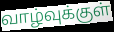
வாழ்வுக்குள்